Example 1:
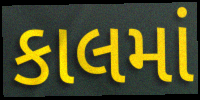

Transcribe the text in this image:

કાલમાં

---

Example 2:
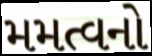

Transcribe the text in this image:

મમત્વનો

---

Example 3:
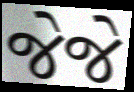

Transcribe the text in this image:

જેજે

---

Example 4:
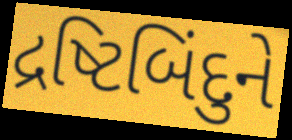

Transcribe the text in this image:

દ્રષ્ટિબિંદુને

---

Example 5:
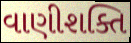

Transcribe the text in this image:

વાણીશક્તિ